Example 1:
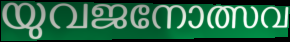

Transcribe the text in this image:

യുവജനോത്സവ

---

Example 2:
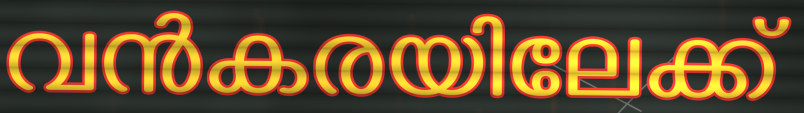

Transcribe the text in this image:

വൻകരയിലേക്ക്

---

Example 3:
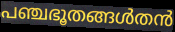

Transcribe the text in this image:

പഞ്ചഭൂതങ്ങൾതൻ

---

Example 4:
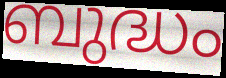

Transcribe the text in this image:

ബുദ്ധം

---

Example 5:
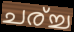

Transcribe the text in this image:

ചര്ച്ച